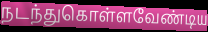
நடந்துகொள்ளவேண்டிய